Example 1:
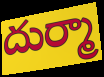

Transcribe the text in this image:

దుర్మా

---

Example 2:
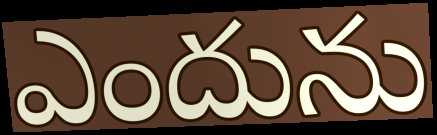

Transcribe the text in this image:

ఎందును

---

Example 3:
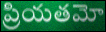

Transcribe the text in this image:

ప్రియతమో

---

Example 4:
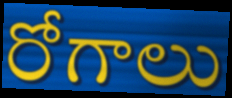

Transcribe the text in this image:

రోగాలు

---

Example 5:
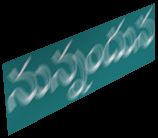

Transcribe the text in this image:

నున్నందున